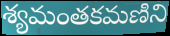
శ్యమంతకమణిని